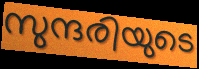
സുന്ദരിയുടെ